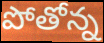
పోతోన్న